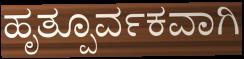
ಹೃತ್ಪೂರ್ವಕವಾಗಿ